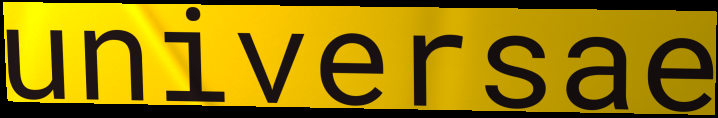
universae